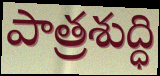
పాత్రశుద్ధి